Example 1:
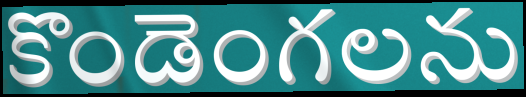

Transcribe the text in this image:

కొండెంగలను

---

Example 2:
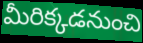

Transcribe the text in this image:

మీరిక్కడనుంచి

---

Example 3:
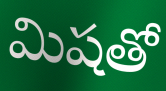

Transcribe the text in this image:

మిషతో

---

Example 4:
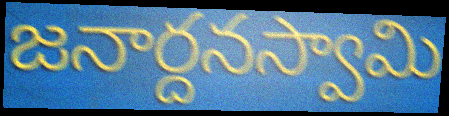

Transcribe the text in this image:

జనార్దనస్వామి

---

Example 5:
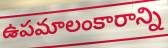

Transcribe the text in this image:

ఉపమాలంకారాన్ని